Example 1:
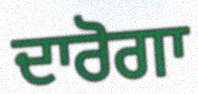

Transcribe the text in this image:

ਦਾਰੋਗਾ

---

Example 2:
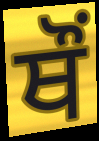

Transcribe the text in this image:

ਥੌਂ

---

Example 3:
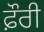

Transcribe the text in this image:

ਫ਼ੌਰੀ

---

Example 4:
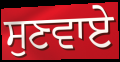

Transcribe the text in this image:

ਸੁਣਵਾਏ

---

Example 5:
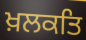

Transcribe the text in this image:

ਖ਼ਲਕਤਿ